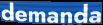
demanda